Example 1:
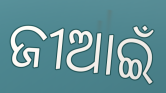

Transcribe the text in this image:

ଜୀଆଇଁ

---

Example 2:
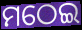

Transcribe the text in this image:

ମଠେଇ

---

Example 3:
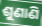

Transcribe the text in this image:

ଶୁଣାଣି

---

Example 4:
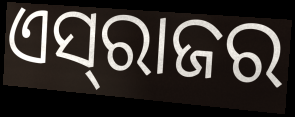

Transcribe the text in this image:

ଏସ୍‍ରାଜର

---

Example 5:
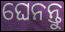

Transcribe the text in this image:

ଘେନନ୍ତୁ